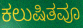
ಕಲುಷಿತವೂ